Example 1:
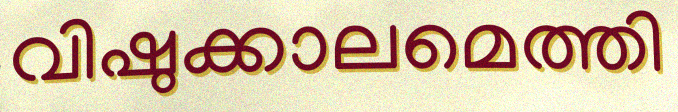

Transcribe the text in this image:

വിഷുക്കാലമെത്തി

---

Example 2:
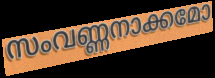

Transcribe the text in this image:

സംവണ്ണനാക്കമോ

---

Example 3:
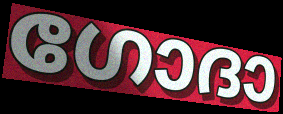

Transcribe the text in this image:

ഗോദാ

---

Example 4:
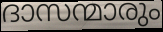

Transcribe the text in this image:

ദാസന്മാരും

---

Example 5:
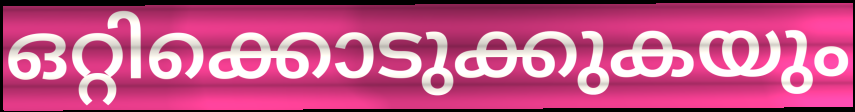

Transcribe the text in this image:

ഒറ്റിക്കൊടുക്കുകയും